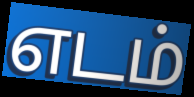
எடம்